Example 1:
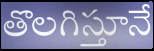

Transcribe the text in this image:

తొలగిస్తూనే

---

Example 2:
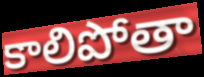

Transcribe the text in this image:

కాలిపోతా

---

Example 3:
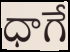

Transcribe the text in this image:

ధాగే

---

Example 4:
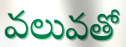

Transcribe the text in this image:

వలువతో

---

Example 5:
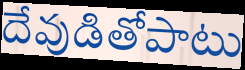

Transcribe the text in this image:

దేవుడితోపాటు